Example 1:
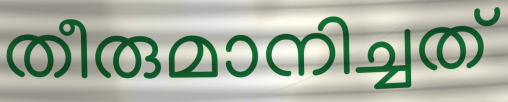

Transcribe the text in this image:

തീരുമാനിച്ചത്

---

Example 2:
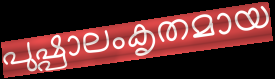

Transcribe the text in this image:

പുഷ്പാലംകൃതമായ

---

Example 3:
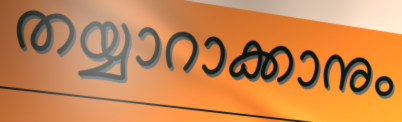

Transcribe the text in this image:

തയ്യാറാക്കാനും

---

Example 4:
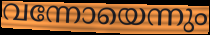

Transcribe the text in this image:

വന്നോയെന്നും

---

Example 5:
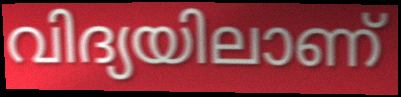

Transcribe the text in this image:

വിദ്യയിലാണ്